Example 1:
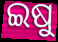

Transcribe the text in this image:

ଇଷୁ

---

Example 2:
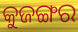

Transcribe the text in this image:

କୁଜଙ୍ଗର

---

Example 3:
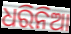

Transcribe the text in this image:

ଧରିନିଆ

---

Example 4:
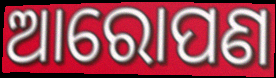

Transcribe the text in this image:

ଆରୋପଣ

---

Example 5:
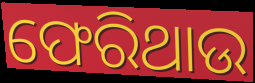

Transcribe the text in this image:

ଫେରିଥାଉ